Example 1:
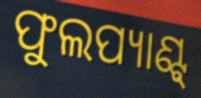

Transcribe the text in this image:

ଫୁଲପ୍ୟାଣ୍ଟ୍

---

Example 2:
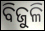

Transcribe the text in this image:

ବିଜୁଳି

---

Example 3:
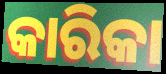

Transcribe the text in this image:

କାରିକା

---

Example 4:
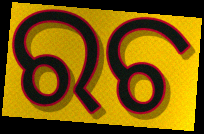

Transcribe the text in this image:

ରଚ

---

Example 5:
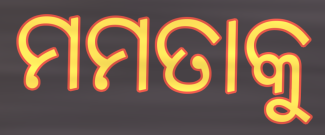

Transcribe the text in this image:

ମମତାକୁ